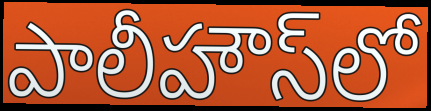
పాలీహౌస్‌లో